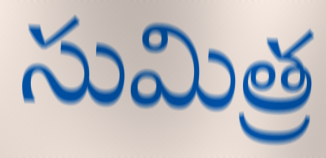
సుమిత్ర